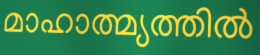
മാഹാത്മ്യത്തിൽ